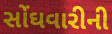
સોંઘવારીની